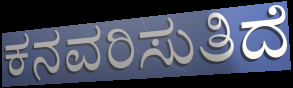
ಕನವರಿಸುತಿದೆ